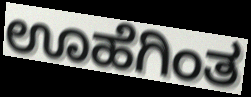
ಊಹೆಗಿಂತ